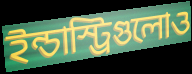
ইন্ডাস্ট্রিগুলোও